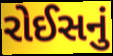
રોઈસનું